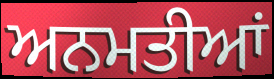
ਅਨਮਤੀਆਂ